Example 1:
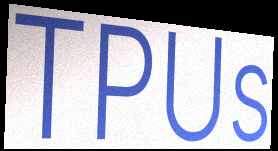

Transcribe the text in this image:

TPUs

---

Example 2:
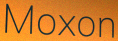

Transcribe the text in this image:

Moxon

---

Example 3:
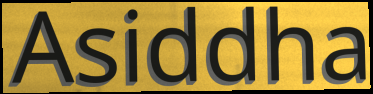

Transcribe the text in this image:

Asiddha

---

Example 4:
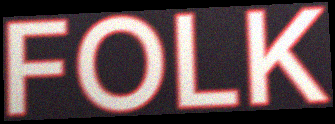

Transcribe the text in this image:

FOLK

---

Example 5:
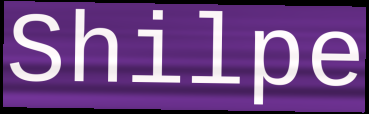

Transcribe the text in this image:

Shilpe